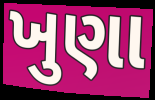
ખુણા